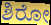
ಶಿರೋ